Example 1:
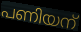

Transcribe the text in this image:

പണിയന്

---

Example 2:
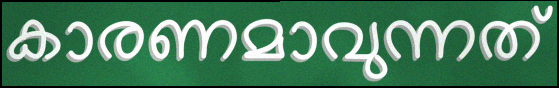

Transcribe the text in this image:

കാരണമാവുന്നത്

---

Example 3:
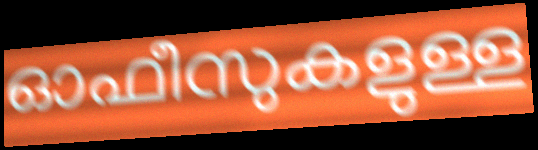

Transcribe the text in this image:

ഓഫീസുകളുള്ള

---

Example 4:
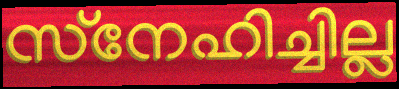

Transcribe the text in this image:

സ്‌നേഹിച്ചില്ല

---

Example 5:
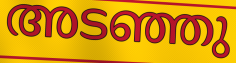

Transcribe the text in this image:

അടഞ്ഞു